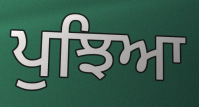
ਪੁਝਿਆ